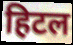
हिटल